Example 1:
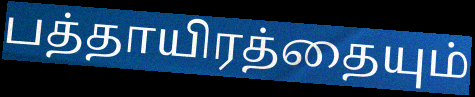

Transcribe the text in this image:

பத்தாயிரத்தையும்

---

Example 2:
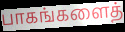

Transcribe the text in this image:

பாகங்களைத்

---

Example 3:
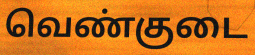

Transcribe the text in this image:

வெண்குடை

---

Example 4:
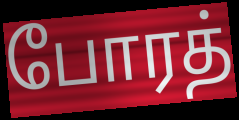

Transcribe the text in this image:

போரத்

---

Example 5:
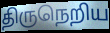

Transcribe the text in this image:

திருநெறிய